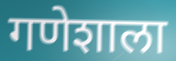
गणेशाला